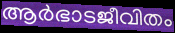
ആർഭാടജീവിതം